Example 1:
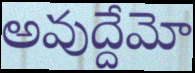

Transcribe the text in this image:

అవుద్దేమో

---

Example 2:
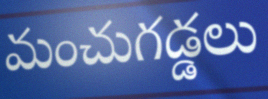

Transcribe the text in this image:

మంచుగడ్డలు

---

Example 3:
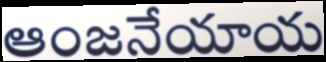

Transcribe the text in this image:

ఆంజనేయాయ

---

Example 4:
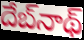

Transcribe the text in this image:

దేబ్‌నాథ్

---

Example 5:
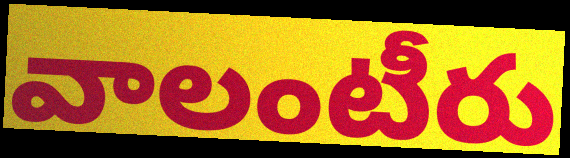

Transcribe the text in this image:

వాలంటీరు